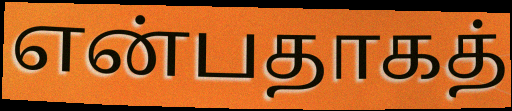
என்பதாகத்